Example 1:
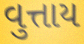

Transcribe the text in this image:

વુત્તાય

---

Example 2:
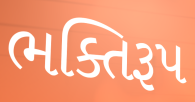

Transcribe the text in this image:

ભક્તિરૂપ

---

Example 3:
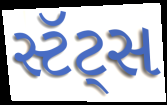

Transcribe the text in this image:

સ્ટૅટ્સ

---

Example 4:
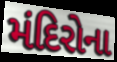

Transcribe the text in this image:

મંદિરોના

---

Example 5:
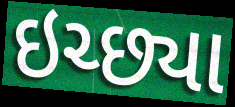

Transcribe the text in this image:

ઇચ્છ્યા